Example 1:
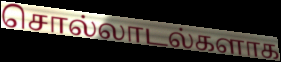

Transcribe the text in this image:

சொல்லாடல்களாக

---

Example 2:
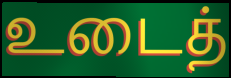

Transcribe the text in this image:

உடைத்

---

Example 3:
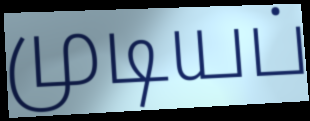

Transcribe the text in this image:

முடியப்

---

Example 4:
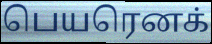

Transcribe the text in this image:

பெயரெனக்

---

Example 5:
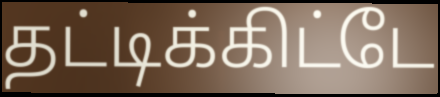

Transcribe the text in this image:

தட்டிக்கிட்டே